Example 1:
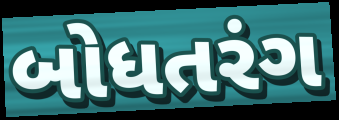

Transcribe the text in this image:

બોધતરંગ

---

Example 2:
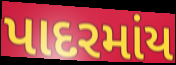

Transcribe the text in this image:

પાદરમાંય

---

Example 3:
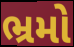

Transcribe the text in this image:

ભ્રમો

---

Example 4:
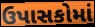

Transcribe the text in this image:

ઉપાસકોમાં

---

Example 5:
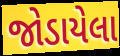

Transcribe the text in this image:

જોડાયેલા